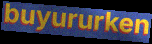
buyururken